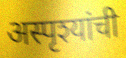
अस्पृश्यांची